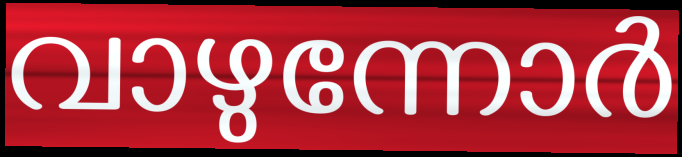
വാഴുന്നോർ